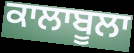
ਕਾਲਾਬੂਲਾ